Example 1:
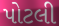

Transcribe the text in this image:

પોટલી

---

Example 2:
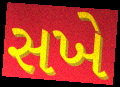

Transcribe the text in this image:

સખે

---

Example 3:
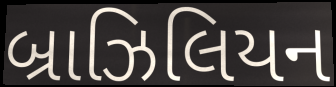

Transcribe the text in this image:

બ્રાઝિલિયન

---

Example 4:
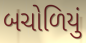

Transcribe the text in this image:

બચોળિયું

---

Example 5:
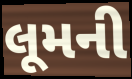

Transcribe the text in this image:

લૂમની